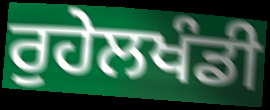
ਰੁਹੇਲਖੰਡੀ